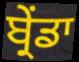
ਬ੍ਰੇਂਡਾ